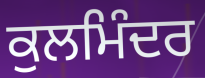
ਕੁਲਮਿੰਦਰ